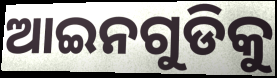
ଆଇନଗୁଡିକୁ